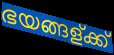
ഭയങ്ങള്ക്ക്